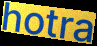
hotra